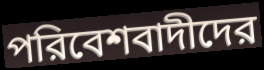
পরিবেশবাদীদের